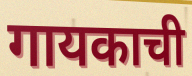
गायकाची